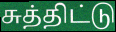
சுத்திட்டு